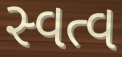
સ્વત્વ